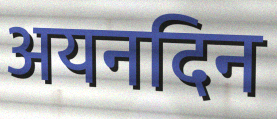
अयनदिन